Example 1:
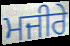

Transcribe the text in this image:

ਮਜੀਰੇ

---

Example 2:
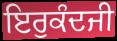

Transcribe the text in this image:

ਇਰੁਕੰਦਜੀ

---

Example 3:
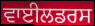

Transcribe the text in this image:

ਵਾਈਲਡਰਸ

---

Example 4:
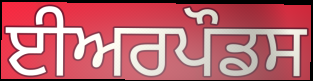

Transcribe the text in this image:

ਈਅਰਪੌਡਸ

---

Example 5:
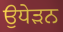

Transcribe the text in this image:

ਉਧੇੜਨ